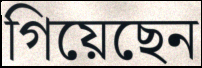
গিয়েছেন